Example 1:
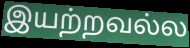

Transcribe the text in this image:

இயற்றவல்ல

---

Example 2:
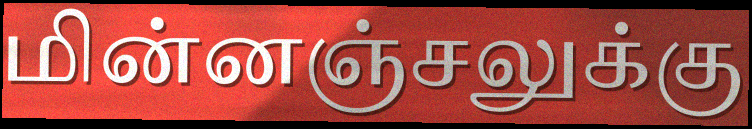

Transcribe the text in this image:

மின்னஞ்சலுக்கு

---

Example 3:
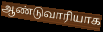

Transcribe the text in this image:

ஆண்டுவாரியாக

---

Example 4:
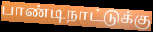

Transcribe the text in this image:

பாண்டிநாட்டுக்கு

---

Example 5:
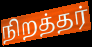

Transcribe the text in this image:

நிறத்தர்